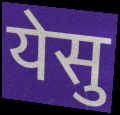
येसु